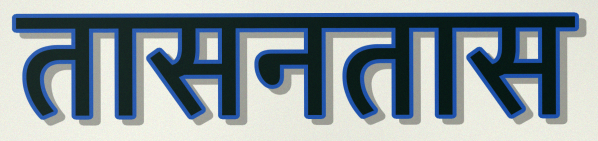
तासनतास